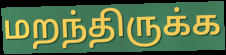
மறந்திருக்க